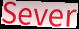
Sever